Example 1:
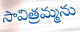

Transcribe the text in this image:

సావిత్రమ్మను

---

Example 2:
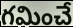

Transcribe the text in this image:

గమించే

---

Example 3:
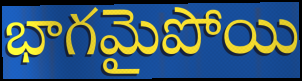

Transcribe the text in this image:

భాగమైపోయి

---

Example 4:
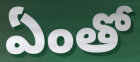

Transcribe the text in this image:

ఏంతో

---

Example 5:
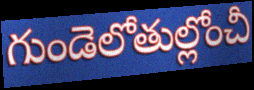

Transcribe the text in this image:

గుండెలోతుల్లోంచీ